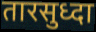
तारसुध्दा